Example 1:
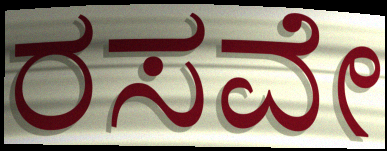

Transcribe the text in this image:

ರಸವೇ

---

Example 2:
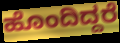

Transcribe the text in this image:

ಹೊಂದಿದ್ದರೆ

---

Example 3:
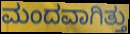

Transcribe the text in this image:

ಮಂದವಾಗಿತ್ತು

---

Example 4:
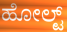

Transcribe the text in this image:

ಹೋಲ್ಟ್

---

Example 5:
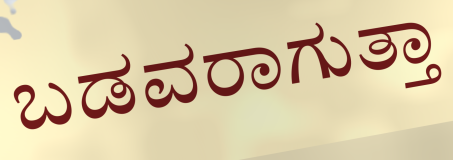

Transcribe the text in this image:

ಬಡವರಾಗುತ್ತಾ